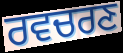
ਰਵਚਰਣ